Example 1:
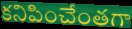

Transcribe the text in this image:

కనిపించేంతగా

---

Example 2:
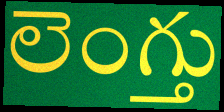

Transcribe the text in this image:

లెంగ్తు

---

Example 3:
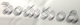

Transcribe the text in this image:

పెంచుకుంది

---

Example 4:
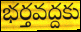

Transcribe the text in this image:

భర్తవద్దకు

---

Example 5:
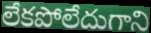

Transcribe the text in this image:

లేకపోలేదుగాని